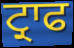
ਟ੍ਰਾਫ